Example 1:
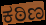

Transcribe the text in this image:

ಕಠಿಣ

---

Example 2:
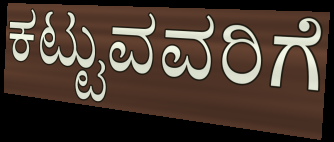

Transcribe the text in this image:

ಕಟ್ಟುವವರಿಗೆ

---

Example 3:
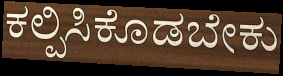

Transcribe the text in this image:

ಕಲ್ಪಿಸಿಕೊಡಬೇಕು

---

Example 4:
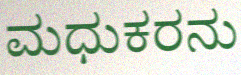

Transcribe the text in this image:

ಮಧುಕರನು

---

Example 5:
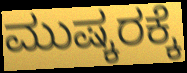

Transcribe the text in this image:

ಮುಷ್ಕರಕ್ಕೆ